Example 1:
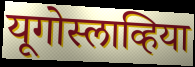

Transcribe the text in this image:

यूगोस्लाव्हिया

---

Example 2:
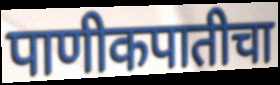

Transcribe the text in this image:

पाणीकपातीचा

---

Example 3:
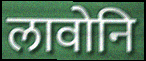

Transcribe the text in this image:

लावोनि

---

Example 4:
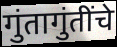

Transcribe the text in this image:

गुंतागुंतींचे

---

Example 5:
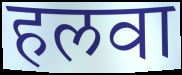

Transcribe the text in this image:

हलवा